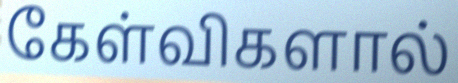
கேள்விகளால்